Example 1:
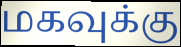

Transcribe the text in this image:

மகவுக்கு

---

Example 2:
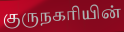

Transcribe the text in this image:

குருநகரியின்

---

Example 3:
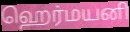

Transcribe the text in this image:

ஹெர்மயனி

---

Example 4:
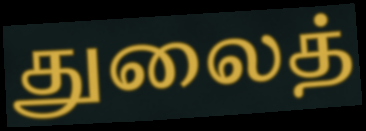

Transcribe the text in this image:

துலைத்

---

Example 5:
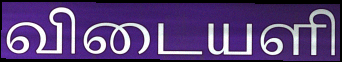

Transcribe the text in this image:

விடையளி